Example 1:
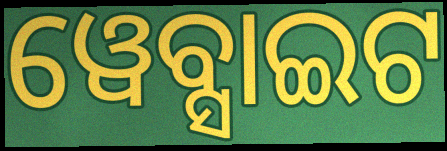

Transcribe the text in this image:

ୱେବ୍ସାଇଟ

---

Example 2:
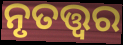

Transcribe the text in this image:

ନୃତତ୍ତ୍ଵର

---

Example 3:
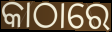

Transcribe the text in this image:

କାଠାରେ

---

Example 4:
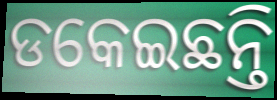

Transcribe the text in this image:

ଡକେଇଛନ୍ତି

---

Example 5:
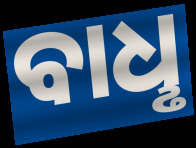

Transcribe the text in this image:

ବାଧୢ